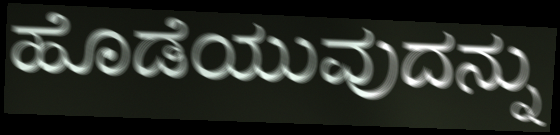
ಹೊಡೆಯುವುದನ್ನು